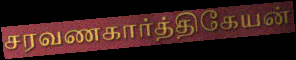
சரவணகார்த்திகேயன்